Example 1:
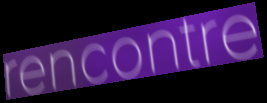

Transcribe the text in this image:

rencontre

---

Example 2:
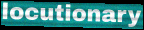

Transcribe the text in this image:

locutionary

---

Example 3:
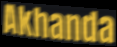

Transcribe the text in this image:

Akhanda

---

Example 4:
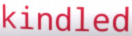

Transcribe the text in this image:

kindled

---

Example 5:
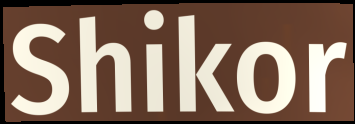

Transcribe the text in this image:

Shikor